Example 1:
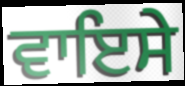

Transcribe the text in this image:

ਵਾਇਸੇ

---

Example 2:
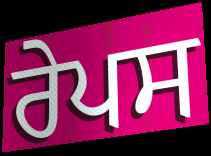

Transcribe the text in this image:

ਰੇਪਸ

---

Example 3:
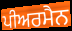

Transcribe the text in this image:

ਪੀਅਰਮੈਨ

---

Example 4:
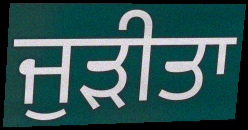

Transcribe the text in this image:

ਜੁੜੀਤਾ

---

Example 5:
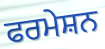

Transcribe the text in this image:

ਫਰਮੇਸ਼ਨ